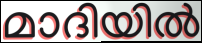
മാദിയിൽ